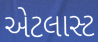
એટલાસ્ટ